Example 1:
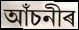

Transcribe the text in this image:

আঁচনীৰ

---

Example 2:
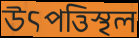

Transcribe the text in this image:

উৎপত্তিস্থল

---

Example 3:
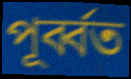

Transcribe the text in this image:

পূৰ্ব্বত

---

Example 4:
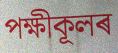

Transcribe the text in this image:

পক্ষীকূলৰ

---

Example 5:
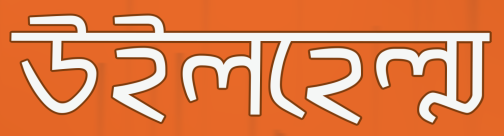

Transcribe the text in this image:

উইলহেল্ম